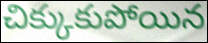
చిక్కుకుపోయిన